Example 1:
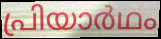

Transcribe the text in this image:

പ്രിയാർഥം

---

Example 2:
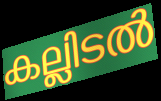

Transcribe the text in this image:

കല്ലിടൽ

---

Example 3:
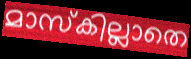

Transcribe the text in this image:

മാസ്കില്ലാതെ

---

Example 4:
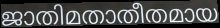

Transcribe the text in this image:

ജാതിമതാതീതമായ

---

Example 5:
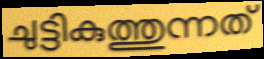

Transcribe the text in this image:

ചുട്ടികുത്തുന്നത്